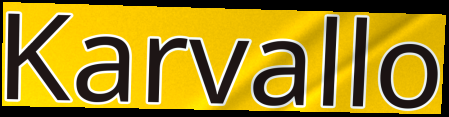
Karvallo